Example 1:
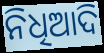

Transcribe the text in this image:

ନିଧିଆଦି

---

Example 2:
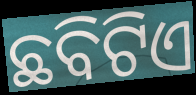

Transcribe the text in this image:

ଛବିଟିଏ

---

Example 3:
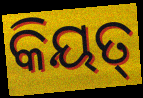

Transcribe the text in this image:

କିୟତ୍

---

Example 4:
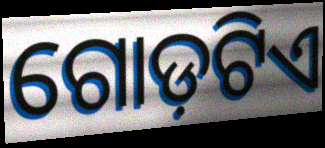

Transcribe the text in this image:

ଗୋଡ଼ଟିଏ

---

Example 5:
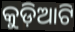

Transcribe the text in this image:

କୁଡ଼ିଆଟି